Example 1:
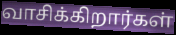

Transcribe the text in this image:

வாசிக்கிறார்கள்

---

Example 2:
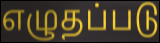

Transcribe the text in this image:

எழுதப்படு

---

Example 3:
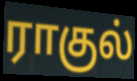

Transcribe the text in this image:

ராகுல்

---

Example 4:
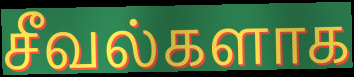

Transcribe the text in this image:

சீவல்களாக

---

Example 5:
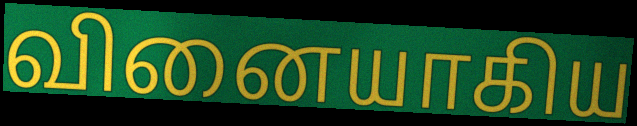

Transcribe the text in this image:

வினையாகிய